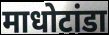
माधोटांडा